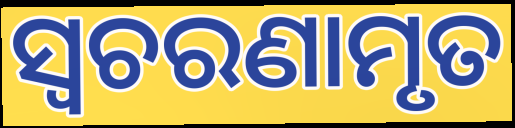
ସ୍ଵଚରଣାମୃତ